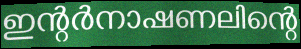
ഇന്റർനാഷണലിന്റെ